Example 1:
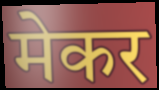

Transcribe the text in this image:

मेकर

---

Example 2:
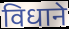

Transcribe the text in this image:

विधाने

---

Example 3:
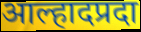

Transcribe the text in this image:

आल्हादप्रदा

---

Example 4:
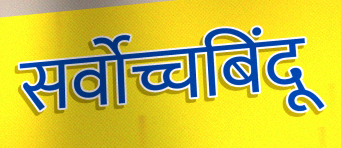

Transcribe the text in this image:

सर्वोच्चबिंदू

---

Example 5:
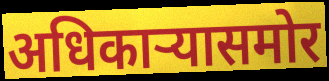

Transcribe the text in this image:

अधिकाऱ्यासमोर